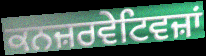
ਕਨਜ਼ਰਵੇਟਿਵਜ਼ਾਂ